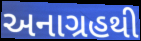
અનાગ્રહથી